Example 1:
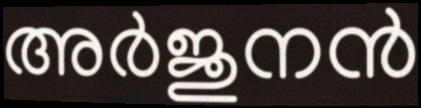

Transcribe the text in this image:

അർജുനൻ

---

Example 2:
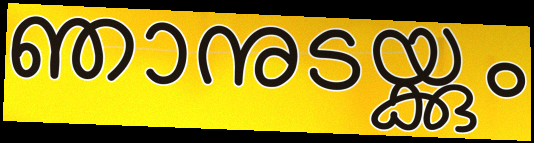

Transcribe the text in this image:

ഞാനുടയ്ക്കും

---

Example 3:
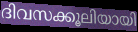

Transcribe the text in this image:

ദിവസക്കൂലിയായി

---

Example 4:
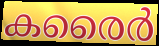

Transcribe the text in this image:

കരൈർ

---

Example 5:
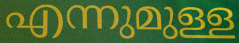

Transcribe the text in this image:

എന്നുമുള്ള